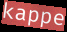
kappe